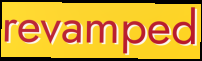
revamped